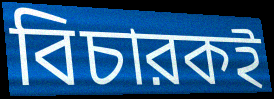
বিচারকই